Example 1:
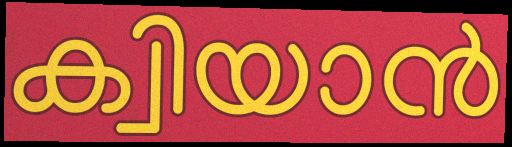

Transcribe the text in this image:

ക്വിയാൻ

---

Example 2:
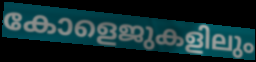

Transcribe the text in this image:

കോളെജുകളിലും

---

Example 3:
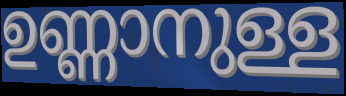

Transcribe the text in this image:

ഉണ്ണാനുള്ള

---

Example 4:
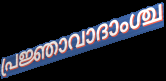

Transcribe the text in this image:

പ്രജ്ഞാവാദാംശ്ച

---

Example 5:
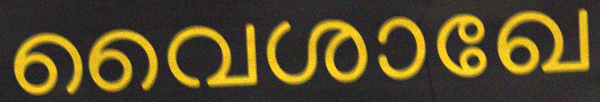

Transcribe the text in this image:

വൈശാഖേ